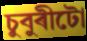
চুবুৰীটো